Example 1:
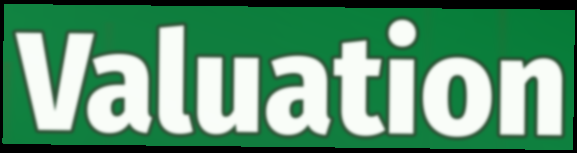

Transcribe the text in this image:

Valuation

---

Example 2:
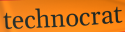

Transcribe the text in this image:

technocrat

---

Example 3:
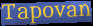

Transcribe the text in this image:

Tapovan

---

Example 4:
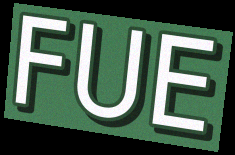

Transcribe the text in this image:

FUE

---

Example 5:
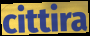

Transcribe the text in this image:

cittira